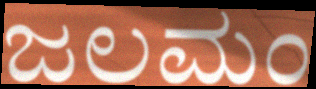
ಜಲಮಂ